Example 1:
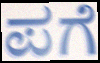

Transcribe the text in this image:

ಪಗೆ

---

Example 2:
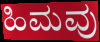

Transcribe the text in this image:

ಹಿಮವು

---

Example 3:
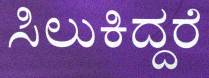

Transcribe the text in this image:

ಸಿಲುಕಿದ್ದರೆ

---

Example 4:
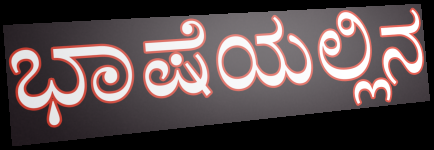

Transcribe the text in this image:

ಭಾಷೆಯಲ್ಲಿನ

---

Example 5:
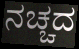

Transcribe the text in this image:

ನಚ್ಚದ